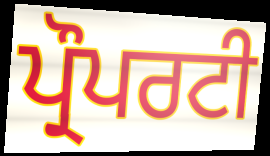
ਪ੍ਰੌਪਰਟੀ